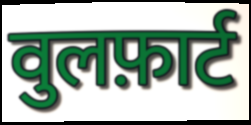
वुलफ़ार्ट